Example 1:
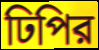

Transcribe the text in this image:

ঢিপির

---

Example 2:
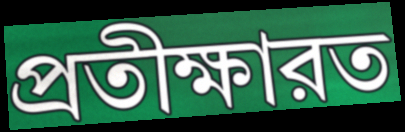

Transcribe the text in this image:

প্রতীক্ষারত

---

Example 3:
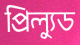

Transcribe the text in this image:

প্রিল্যুড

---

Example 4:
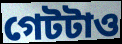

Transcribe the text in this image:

গেটটাও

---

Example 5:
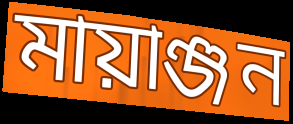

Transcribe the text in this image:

মায়াঞ্জন